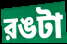
রঙটা